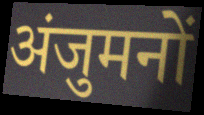
अंजुमनों